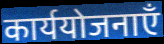
कार्ययोजनाएँ